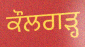
ਕੌਲਗੜ੍ਹ